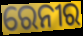
ରେନୀର